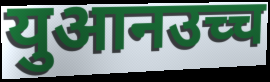
युआनउच्च